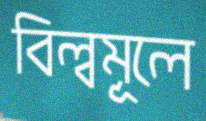
বিল্বমূলে